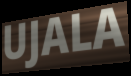
UJALA